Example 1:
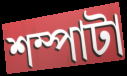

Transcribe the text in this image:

শম্পাটা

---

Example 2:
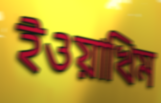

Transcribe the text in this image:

ইওয়াখিম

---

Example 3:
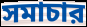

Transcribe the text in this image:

সমাচার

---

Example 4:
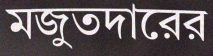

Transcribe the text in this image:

মজুতদারের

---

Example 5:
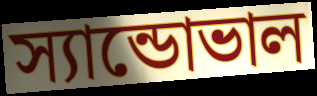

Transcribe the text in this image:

স্যান্ডোভাল